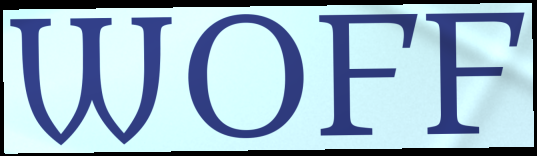
WOFF